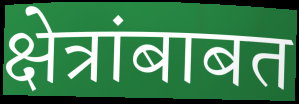
क्षेत्रांबाबत